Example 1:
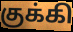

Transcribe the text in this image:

குக்கி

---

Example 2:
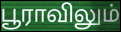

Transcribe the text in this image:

பூராவிலும்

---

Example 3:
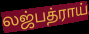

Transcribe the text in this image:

லஜ்பத்ராய்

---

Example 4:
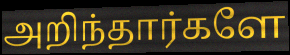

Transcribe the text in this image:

அறிந்தார்களே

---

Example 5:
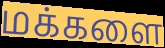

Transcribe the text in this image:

மக்களை